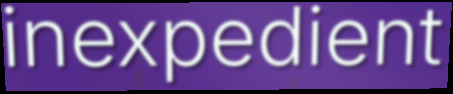
inexpedient